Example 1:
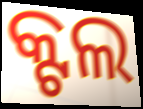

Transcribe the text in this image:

କ୍ଟଲ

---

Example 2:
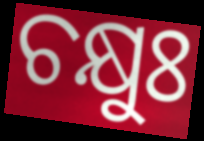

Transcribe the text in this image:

ଚକ୍ଷୁଃ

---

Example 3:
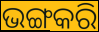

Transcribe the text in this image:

ଭଙ୍ଗକରି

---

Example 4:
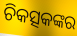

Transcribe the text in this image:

ଚିକତ୍ସକଙ୍କର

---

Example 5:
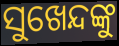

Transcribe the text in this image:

ସୁଖେନ୍ଦଙ୍କୁ